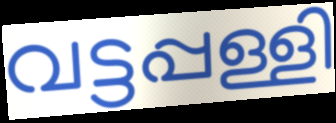
വട്ടപ്പള്ളി